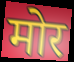
मोर